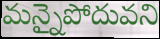
మన్నైపోదువని